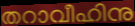
തറാവീഹിനു